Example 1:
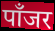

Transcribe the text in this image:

पाँजर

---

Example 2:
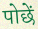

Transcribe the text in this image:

पोछें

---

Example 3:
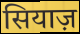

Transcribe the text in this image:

सियाज़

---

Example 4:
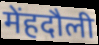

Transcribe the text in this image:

मेंहदौली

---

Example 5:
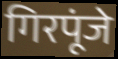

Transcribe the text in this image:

गिरपूंजे